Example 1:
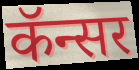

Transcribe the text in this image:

कॅन्सर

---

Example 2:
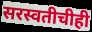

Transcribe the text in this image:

सरस्वतीचीही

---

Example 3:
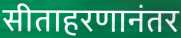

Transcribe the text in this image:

सीताहरणानंतर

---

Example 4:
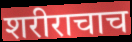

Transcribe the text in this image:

शरीराचाच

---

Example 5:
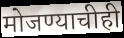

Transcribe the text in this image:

मोजण्याचीही